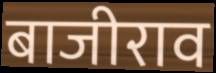
बाजीराव